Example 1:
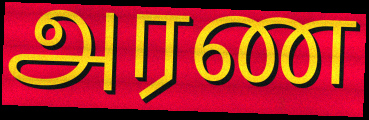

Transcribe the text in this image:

அரண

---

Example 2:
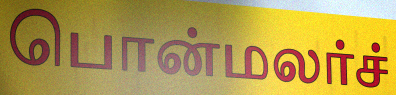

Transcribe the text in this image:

பொன்மலர்ச்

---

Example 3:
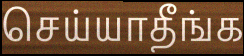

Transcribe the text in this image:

செய்யாதீங்க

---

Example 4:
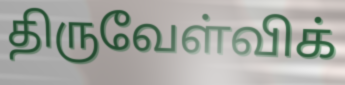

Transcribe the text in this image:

திருவேள்விக்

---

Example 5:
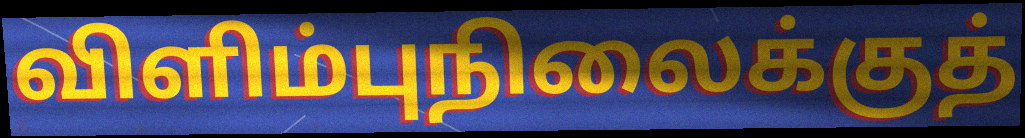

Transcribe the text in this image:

விளிம்புநிலைக்குத்